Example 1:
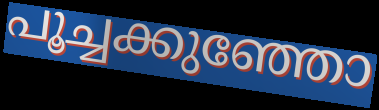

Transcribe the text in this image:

പൂച്ചക്കുഞ്ഞോ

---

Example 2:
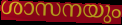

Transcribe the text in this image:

ശാസനയും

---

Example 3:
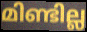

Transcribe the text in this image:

മിണ്ടില്ല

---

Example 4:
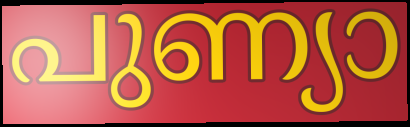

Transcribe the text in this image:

പുണ്യാ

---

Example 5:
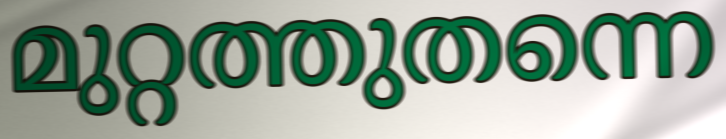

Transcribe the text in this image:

മുറ്റത്തുതന്നെ